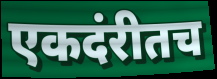
एकदंरीतच